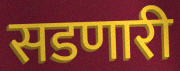
सडणारी